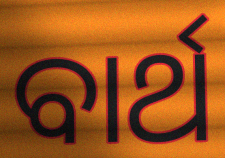
ବାର୍ଥ